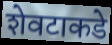
शेवटाकडे